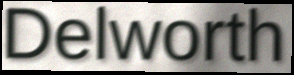
Delworth